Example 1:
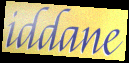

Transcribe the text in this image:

iddane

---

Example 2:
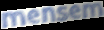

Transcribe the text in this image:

mensem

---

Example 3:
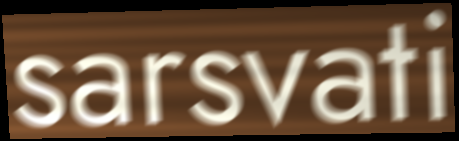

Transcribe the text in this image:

sarsvati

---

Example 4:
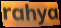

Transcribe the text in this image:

rahya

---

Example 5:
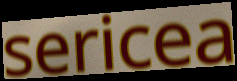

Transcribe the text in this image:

sericea